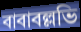
বাবাবল্লভি